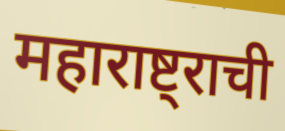
महाराष्ट्राची